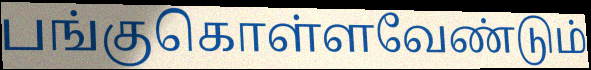
பங்குகொள்ளவேண்டும்